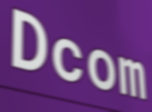
Dcom